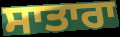
ਸਾਤਾਰਾ